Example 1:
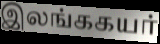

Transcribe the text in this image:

இலங்ககயர்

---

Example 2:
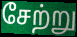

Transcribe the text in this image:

சேற்று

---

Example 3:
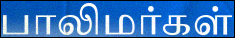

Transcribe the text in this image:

பாலிமர்கள்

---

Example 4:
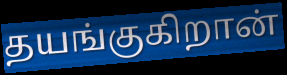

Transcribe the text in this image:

தயங்குகிறான்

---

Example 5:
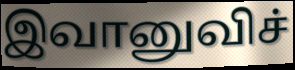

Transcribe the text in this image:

இவானுவிச்